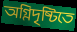
অগ্নিদৃষ্টিতে